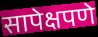
सापेक्षपणे